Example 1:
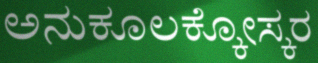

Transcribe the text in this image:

ಅನುಕೂಲಕ್ಕೋಸ್ಕರ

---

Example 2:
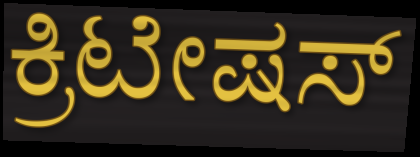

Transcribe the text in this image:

ಕ್ರಿಟೇಷಸ್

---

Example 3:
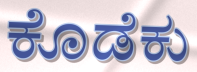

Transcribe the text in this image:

ಕೊಡೆಕು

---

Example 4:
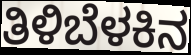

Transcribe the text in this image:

ತಿಳಿಬೆಳಕಿನ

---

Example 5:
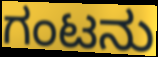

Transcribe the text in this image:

ಗಂಟನು